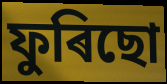
ফুৰিছো